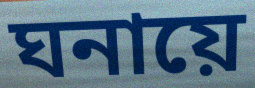
ঘনায়ে